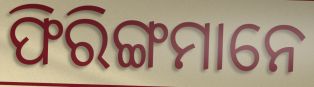
ଫିରିଙ୍ଗମାନେ